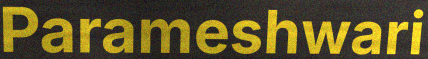
Parameshwari